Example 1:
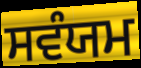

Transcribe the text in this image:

ਸਵੰਯਮ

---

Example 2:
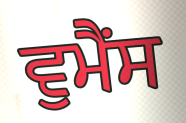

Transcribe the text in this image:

ਵੁਮੈਂਸ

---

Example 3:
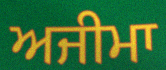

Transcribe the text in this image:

ਅਜੀਮਾ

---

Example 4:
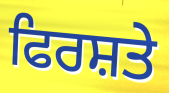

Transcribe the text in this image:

ਫਿਰਸ਼ਤੇ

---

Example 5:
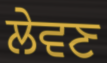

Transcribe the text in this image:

ਲੇਵਣ